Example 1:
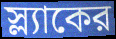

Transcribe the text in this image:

স্ল্যাকের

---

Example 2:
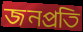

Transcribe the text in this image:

জনপ্রতি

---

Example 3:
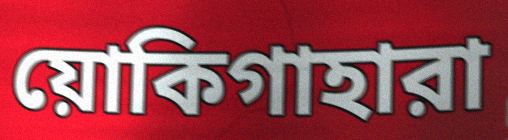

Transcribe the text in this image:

য়োকিগাহারা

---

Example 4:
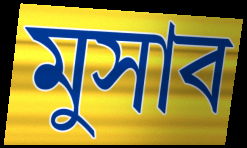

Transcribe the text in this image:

মুসাব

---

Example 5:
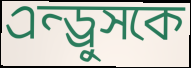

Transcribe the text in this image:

এন্ড্রুসকে